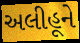
અલીહૂને